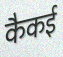
कैकई